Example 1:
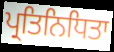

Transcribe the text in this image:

ਪ੍ਰਤਿਨਿਧਿਤਾ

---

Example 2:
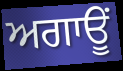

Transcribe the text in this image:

ਅਗਾਊਂ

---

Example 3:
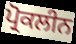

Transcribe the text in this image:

ਪ੍ਰੋਕਲੀਨ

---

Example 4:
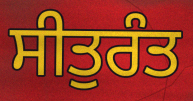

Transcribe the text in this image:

ਸੀਤੁਰੰਤ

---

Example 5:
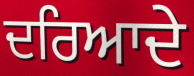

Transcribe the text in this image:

ਦਰਿਆਦੇ